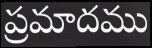
ప్రమాదము